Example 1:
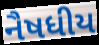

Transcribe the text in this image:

નૈષધીય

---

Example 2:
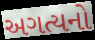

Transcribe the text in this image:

અગત્યનો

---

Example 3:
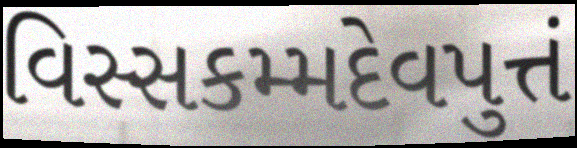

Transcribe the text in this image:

વિસ્સકમ્મદેવપુત્તં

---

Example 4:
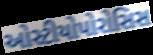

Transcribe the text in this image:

ઓસ્ટીયોપોરોસિસ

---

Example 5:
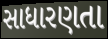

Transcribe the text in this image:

સાધારણતા